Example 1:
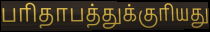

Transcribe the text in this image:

பரிதாபத்துக்குரியது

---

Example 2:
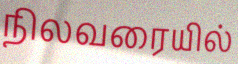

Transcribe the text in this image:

நிலவரையில்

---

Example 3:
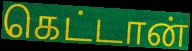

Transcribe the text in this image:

கெட்டான்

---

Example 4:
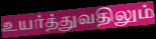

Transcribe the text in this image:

உயர்த்துவதிலும்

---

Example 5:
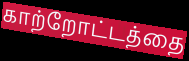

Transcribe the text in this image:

காற்றோட்டத்தை